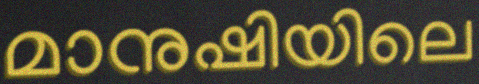
മാനുഷിയിലെ